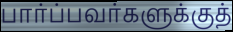
பார்ப்பவர்களுக்குத்